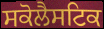
ਸਕੋਲੈਸਟਿਕ